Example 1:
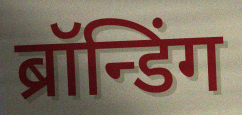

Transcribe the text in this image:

ब्रॉन्डिंग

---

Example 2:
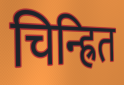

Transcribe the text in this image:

चिन्ह्रित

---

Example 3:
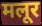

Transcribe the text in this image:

मलूर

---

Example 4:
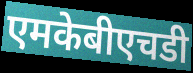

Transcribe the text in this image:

एमकेबीएचडी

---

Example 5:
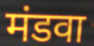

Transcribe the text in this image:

मंडवा